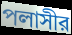
পলাসীর